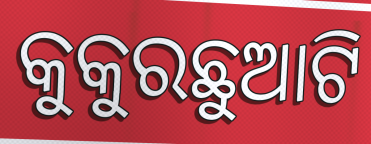
କୁକୁରଛୁଆଟି